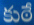
కుఠే